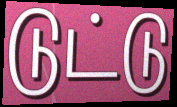
டுட்டு